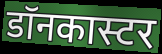
डॉनकास्टर